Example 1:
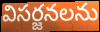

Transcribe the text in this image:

విసర్జనలను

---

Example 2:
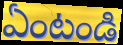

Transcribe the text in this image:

ఏంటండి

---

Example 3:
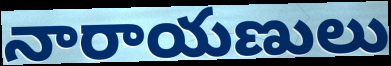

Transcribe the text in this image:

నారాయణులు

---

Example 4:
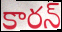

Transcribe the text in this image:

కారన్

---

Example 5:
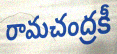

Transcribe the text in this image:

రామచంద్రకీ